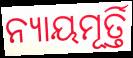
ନ୍ୟାୟମୂର୍ତ୍ତି